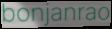
bonjanrao